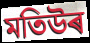
মতিউৰ